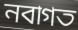
নবাগত